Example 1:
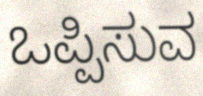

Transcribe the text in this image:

ಒಪ್ಪಿಸುವ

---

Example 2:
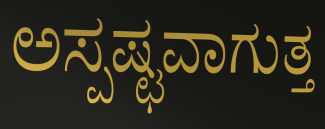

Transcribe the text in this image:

ಅಸ್ಪಷ್ಟವಾಗುತ್ತ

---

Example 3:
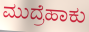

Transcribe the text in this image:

ಮುದ್ರೆಹಾಕು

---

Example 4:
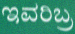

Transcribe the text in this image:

ಇವರಿಬ್ರ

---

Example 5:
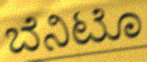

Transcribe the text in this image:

ಬೆನಿಟೊ